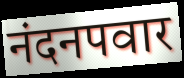
नंदनपवार